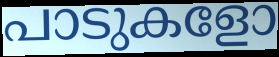
പാടുകളോ